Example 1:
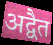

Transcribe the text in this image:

अद्वैत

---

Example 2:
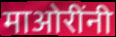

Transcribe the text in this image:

माओरींनी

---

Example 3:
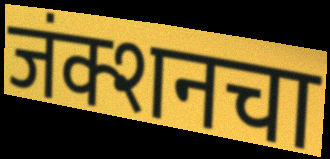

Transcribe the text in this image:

जंक्शनचा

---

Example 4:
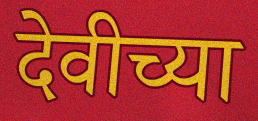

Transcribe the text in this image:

देवीच्या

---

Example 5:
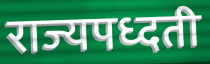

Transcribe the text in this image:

राज्यपध्दती